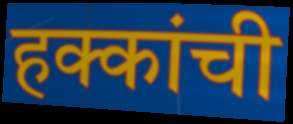
हक्कांची